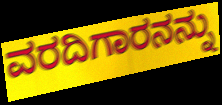
ವರದಿಗಾರನನ್ನು